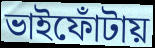
ভাইফোঁটায়